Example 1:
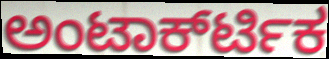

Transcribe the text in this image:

ಅಂಟಾರ್ಕ್‍ಟಿಕ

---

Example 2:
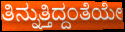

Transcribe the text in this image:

ತಿನ್ನುತ್ತಿದ್ದಂತೆಯೇ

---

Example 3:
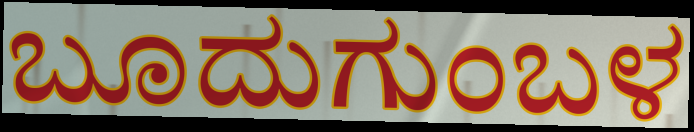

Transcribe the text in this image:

ಬೂದುಗುಂಬಳ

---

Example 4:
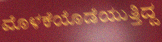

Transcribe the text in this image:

ಮೊಳಕೆಯೊಡೆಯುತ್ತಿದ್ದ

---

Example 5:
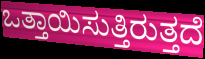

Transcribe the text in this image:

ಒತ್ತಾಯಿಸುತ್ತಿರುತ್ತದೆ